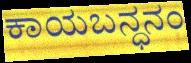
ಕಾಯಬನ್ಧನಂ